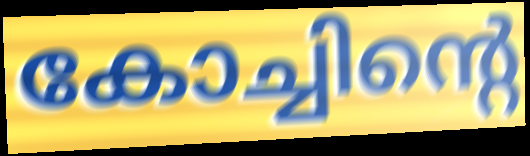
കോച്ചിന്റെ